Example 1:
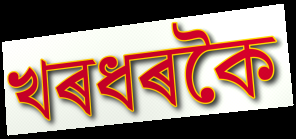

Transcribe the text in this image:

খৰধৰকৈ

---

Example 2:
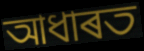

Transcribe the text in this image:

আধাৰত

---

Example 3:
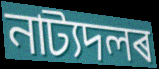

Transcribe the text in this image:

নাট্যদলৰ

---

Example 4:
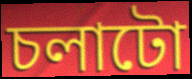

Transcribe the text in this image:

চলাটো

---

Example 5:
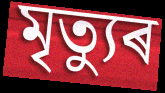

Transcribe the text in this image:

মৃত্যুৰ